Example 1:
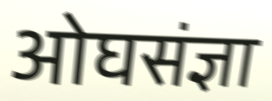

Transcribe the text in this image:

ओघसंज्ञा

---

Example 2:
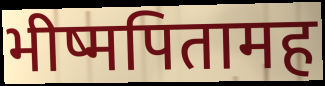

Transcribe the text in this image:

भीष्मपितामह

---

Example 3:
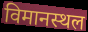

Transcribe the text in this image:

विमानस्थल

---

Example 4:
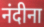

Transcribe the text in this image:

नंदीना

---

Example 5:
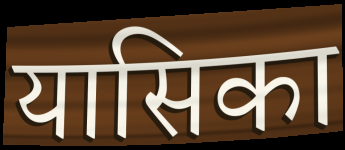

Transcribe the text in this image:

यासिका